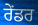
ਰੇੰਡਰ